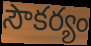
సౌకర్యం